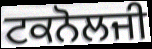
ਟਕਨੋਲਜੀ